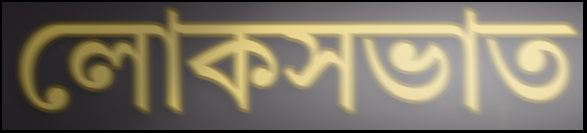
লোকসভাত